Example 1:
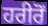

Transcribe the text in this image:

ਹਰੀਰੋਂ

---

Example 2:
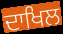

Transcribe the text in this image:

ਦਾਖਿਲ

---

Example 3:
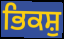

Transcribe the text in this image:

ਭਿਕਸ਼ੁ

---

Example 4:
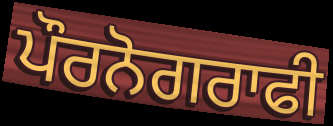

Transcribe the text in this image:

ਪੌਰਨੋਗਰਾਫੀ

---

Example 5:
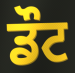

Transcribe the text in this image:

ਡੌਟ